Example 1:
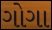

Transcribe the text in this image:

ગોગા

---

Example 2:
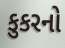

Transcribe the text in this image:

કુકરનો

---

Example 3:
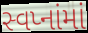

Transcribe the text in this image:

સ્વપ્નાંમાં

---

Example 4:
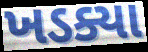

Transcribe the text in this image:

ખડક્યા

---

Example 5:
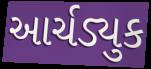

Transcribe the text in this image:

આર્ચડ્યુક